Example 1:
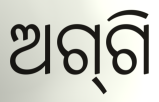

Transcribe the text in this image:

ଅଗ୍‌ଗି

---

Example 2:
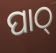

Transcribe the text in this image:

ପାଠ୍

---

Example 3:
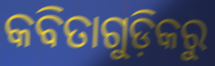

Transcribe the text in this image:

କବିତାଗୁଡ଼ିକରୁ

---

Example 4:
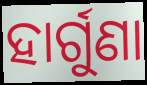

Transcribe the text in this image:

ହାର୍ଗୁଣା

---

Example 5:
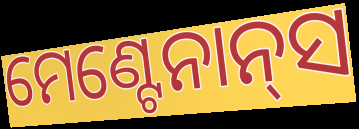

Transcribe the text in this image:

ମେଣ୍ଟେନାନ୍‌ସ